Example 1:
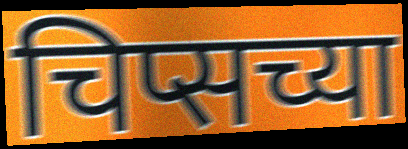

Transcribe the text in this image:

चिप्सच्या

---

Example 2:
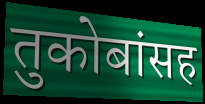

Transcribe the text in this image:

तुकोबांसह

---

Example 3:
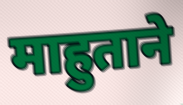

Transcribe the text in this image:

माहुताने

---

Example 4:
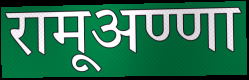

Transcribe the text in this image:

रामूअण्णा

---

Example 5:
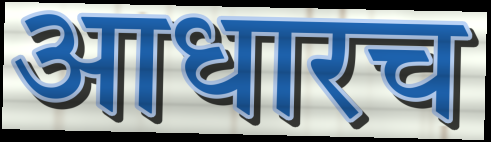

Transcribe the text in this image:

आधारच